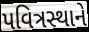
પવિત્રસ્થાને